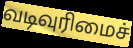
வடிவுரிமைச்